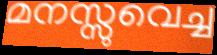
മനസ്സുവെച്ച